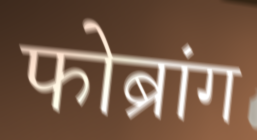
फोब्रांग